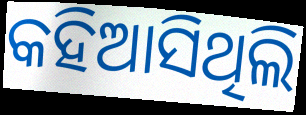
କହିଆସିଥିଲି